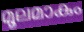
മൂലമാകും